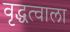
वृद्धत्वाला